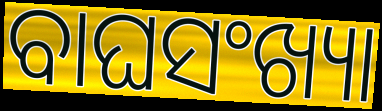
ବାଘସଂଖ୍ୟା